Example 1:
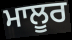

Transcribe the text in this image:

ਮਾਲੂਰ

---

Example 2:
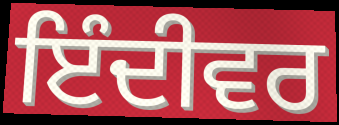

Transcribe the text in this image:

ਇੰਦੀਵਰ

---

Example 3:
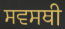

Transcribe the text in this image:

ਸਵਸਥੀ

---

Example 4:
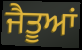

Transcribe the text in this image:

ਜੈਤੂਆਂ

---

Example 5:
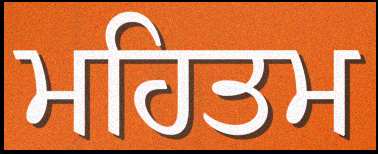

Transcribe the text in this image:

ਮਹਿਤਮ